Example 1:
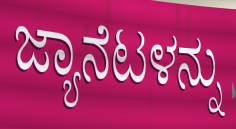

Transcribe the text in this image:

ಜ್ಯಾನೆಟಳನ್ನು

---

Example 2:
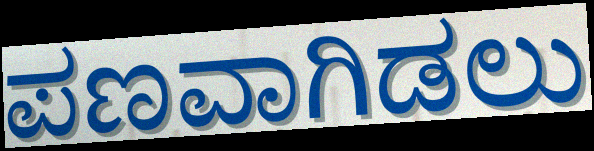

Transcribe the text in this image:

ಪಣವಾಗಿಡಲು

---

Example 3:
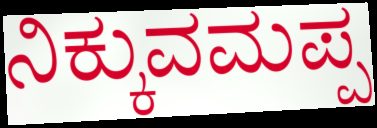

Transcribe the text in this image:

ನಿಕ್ಕುವಮಪ್ಪ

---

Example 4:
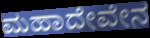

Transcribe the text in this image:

ಮಹಾದೇವೇನ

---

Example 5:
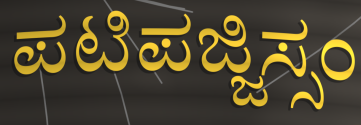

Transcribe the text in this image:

ಪಟಿಪಜ್ಜಿಸ್ಸಂ